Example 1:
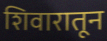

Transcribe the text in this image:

शिवारातून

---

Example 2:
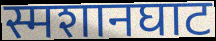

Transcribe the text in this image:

स्मशानघाट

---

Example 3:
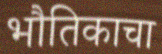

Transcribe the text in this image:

भौतिकाचा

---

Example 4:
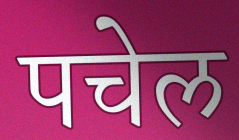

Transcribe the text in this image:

पचेल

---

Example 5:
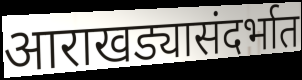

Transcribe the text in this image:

आराखड्यासंदर्भात